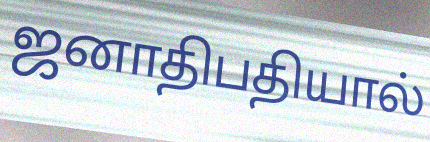
ஜனாதிபதியால்